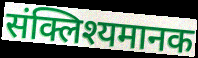
संक्लिश्यमानक